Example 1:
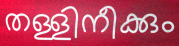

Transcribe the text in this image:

തള്ളിനീക്കും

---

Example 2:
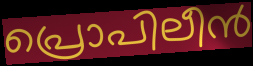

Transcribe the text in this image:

പ്രൊപിലീൻ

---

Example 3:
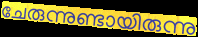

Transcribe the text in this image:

ചേരുന്നുണ്ടായിരുന്നു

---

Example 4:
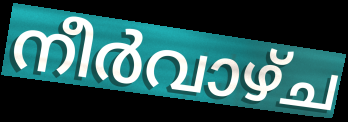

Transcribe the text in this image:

നീർവാഴ്ച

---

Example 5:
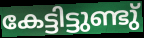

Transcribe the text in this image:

കേട്ടിട്ടുണ്ടു്